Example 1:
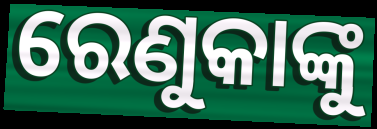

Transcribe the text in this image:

ରେଣୁକାଙ୍କୁ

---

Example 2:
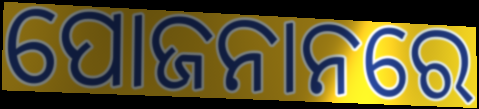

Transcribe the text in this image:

ପୋଜନାନରେ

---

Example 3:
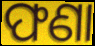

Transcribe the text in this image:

ଫଣା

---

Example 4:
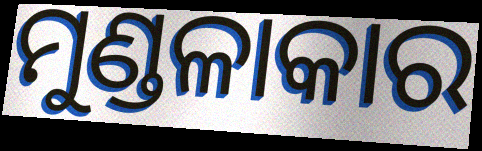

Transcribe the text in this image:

ମୁଣ୍ଡଳାକାର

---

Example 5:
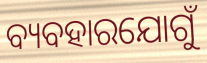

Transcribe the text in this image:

ବ୍ୟବହାରଯୋଗୁଁ